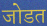
जोडत